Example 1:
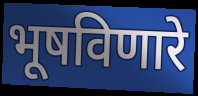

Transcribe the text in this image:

भूषविणारे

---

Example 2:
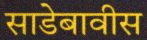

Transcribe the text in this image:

साडेबावीस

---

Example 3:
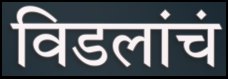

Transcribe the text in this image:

विडलांचं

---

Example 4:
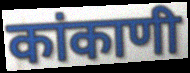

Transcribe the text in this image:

कांकाणी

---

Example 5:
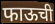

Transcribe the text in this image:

फाऊची